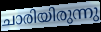
ചാരിയിരുന്നു